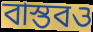
বাস্তবও